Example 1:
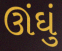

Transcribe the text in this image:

ઊંઘું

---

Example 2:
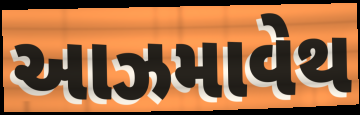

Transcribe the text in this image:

આઝમાવેથ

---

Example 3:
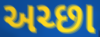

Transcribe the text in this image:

અચ્છા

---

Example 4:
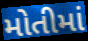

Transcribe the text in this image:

મોતીમાં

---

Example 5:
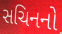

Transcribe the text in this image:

સચિનનો